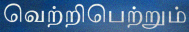
வெற்றிபெற்றும்